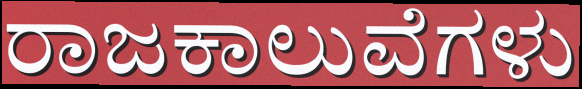
ರಾಜಕಾಲುವೆಗಳು